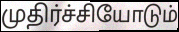
முதிர்ச்சியோடும்